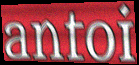
antoi